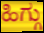
ಹಿಗ್ಗು